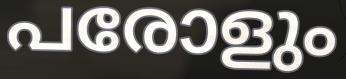
പരോളും